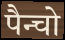
पैन्चो